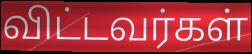
விட்டவர்கள்